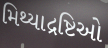
મિથ્યાદ્રષ્ટિઓ